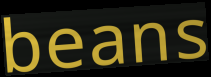
beans